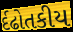
ર્દઢોતકીય